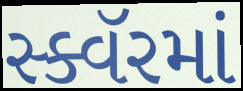
સ્ક્વૅરમાં